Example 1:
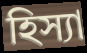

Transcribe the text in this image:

হিস্যা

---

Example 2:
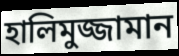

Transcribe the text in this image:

হালিমুজ্জামান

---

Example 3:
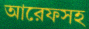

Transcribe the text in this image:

আরেফসহ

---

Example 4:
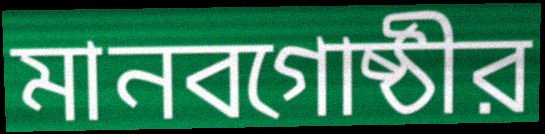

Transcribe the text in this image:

মানবগোষ্ঠীর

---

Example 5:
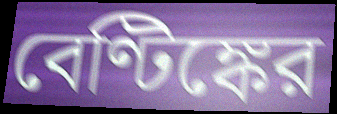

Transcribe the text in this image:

বেণ্টিঙ্কের